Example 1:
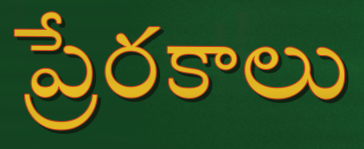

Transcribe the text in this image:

ప్రేరకాలు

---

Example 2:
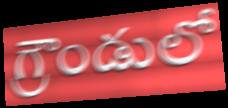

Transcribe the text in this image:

గ్రౌండులో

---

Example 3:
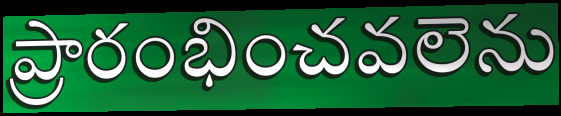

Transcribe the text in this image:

ప్రారంభించవలెను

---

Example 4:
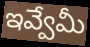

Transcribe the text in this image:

ఇవ్వేమీ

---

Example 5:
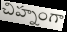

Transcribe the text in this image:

చిహ్నంగా